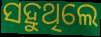
ସହୁଥିଲେ